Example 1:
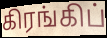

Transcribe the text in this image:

கிரங்கிப்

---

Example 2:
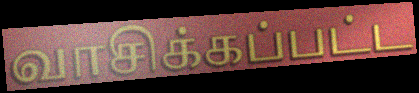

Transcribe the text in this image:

வாசிக்கப்பட்ட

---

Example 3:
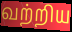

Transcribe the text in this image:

வற்றிய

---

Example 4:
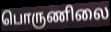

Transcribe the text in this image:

பொருணிலை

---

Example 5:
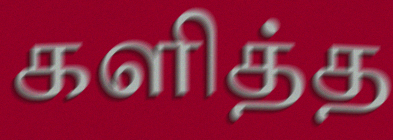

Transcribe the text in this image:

களித்த